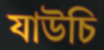
যাউচি